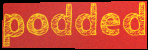
podded